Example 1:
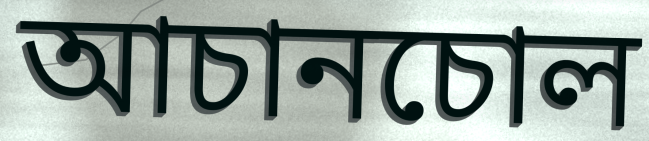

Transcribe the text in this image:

আচানচোল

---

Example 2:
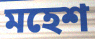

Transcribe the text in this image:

মহেশ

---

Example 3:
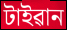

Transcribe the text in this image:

টাইৱান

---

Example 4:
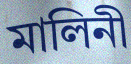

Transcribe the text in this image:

মালিনী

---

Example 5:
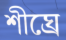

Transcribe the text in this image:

শীঘ্ৰে